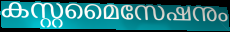
കസ്റ്റമൈസേഷനും